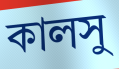
কালসু